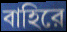
বাহিরে